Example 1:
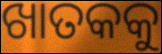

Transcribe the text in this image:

ଖାତକକୁ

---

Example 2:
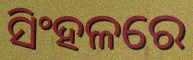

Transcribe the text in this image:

ସିଂହଳରେ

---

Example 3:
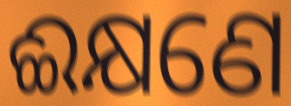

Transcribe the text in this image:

ଈକ୍ଷଣେ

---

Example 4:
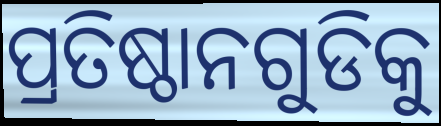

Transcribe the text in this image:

ପ୍ରତିଷ୍ଠାନଗୁଡିକୁ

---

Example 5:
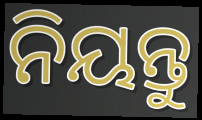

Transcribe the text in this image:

ନିୟନ୍ତୁ